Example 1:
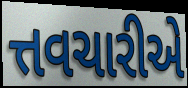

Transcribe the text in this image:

ત્તવચારીએ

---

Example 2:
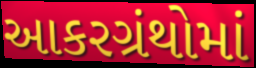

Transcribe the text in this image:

આકરગ્રંથોમાં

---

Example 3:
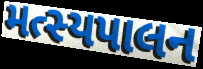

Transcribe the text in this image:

મત્સ્યપાલન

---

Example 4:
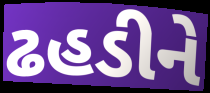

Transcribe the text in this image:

ઢહડીને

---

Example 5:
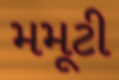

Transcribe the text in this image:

મમૂટી